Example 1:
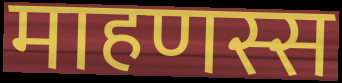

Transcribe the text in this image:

माहणस्स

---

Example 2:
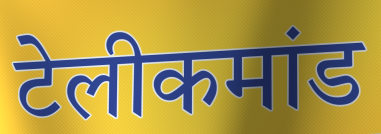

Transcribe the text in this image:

टेलीकमांड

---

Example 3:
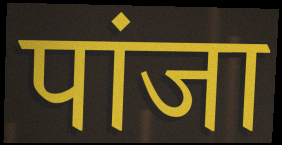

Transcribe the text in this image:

पांजा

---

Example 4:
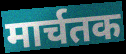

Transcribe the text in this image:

मार्चतक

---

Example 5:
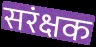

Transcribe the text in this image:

सरंक्षक